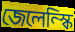
জেলেন্স্কি